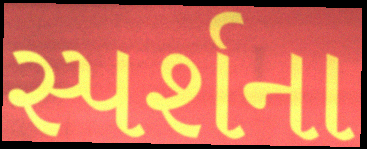
સ્પર્શના